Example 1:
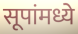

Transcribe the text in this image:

सूपांमध्ये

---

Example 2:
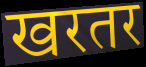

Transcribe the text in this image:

खरतर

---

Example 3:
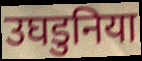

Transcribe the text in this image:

उघडुनिया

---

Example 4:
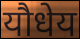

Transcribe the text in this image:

यौधेय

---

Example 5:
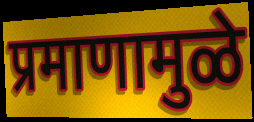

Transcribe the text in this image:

प्रमाणामुळे